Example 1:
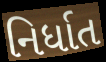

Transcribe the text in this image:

નિર્ધાત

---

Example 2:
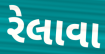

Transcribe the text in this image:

રેલાવા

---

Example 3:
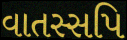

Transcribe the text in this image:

વાતસ્સપિ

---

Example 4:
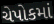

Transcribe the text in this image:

ચેપોકમાં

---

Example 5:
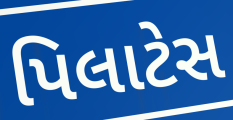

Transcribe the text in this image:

પિલાટેસ